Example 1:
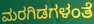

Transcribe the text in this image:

ಮರಗಿಡಗಳಂತೆ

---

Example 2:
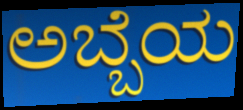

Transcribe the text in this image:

ಅಬ್ಬೆಯ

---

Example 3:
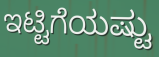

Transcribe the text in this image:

ಇಟ್ಟಿಗೆಯಷ್ಟು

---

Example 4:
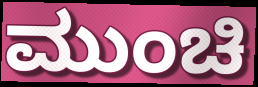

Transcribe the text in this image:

ಮುಂಚಿ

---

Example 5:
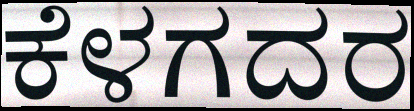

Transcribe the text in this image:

ಕೆಳಗದರ